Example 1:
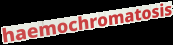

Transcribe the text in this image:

haemochromatosis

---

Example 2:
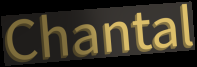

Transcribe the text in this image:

Chantal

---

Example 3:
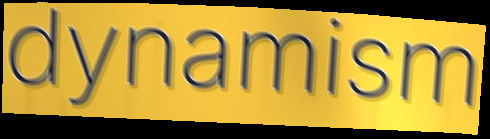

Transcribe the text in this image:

dynamism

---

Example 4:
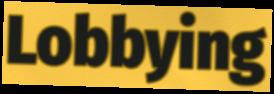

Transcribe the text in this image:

Lobbying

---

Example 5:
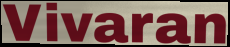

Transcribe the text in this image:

Vivaran